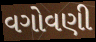
વગોવણી